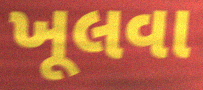
ખૂલવા